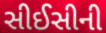
સીઈસીની